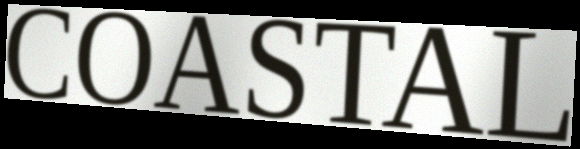
COASTAL